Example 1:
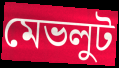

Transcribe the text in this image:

মেভলুট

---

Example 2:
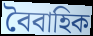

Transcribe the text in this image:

বৈবাহিক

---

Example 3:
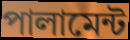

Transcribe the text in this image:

পালামেন্ট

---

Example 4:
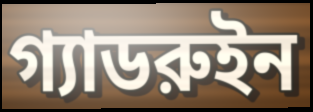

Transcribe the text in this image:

গ্যাডরুইন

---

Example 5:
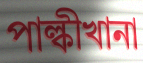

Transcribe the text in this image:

পাল্কীখানা